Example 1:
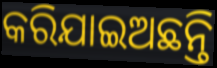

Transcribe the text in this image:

କରିଯାଇଅଛନ୍ତି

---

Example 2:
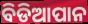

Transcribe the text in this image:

ବିଡିଆପାନ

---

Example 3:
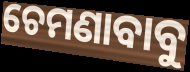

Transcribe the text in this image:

ଚେମଣାବାବୁ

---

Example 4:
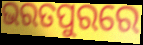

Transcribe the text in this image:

ଭରତପୁରରେ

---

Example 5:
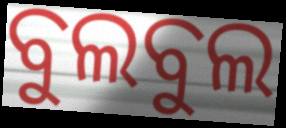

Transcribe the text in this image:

ବୁଲବୁଲ